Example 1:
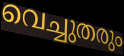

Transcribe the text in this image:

വെച്ചുതരും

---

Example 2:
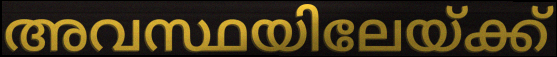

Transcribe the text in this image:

അവസ്ഥയിലേയ്ക്ക്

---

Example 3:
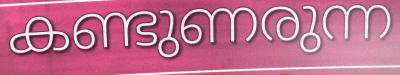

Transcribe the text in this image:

കണ്ടുണരുന്ന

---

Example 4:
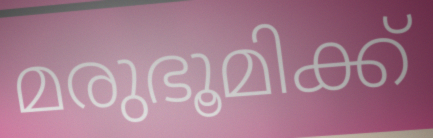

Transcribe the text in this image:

മരുഭൂമിക്ക്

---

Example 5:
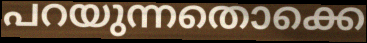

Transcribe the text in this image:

പറയുന്നതൊക്കെ